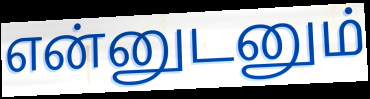
என்னுடனும்